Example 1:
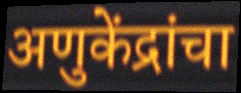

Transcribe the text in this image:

अणुकेंद्रांचा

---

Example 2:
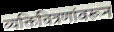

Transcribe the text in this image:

व्यक्तिचित्रणांवरून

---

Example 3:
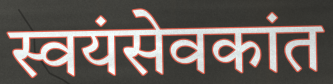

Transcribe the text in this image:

स्वयंसेवकांत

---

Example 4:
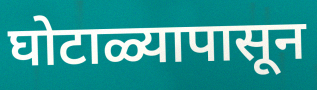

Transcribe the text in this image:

घोटाळ्यापासून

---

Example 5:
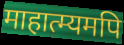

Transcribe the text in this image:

माहात्म्यमपि